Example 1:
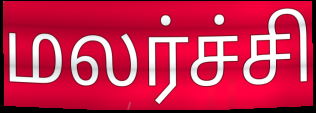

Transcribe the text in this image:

மலர்ச்சி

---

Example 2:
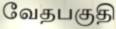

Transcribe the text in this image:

வேதபகுதி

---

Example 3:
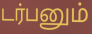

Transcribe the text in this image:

டர்பனும்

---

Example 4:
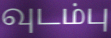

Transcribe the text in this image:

வுடம்பு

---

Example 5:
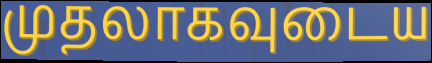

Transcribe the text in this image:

முதலாகவுடைய